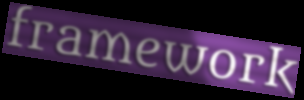
framework